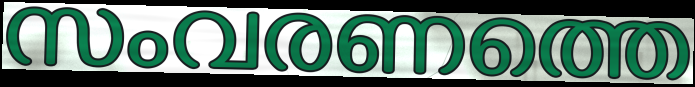
സംവരണത്തെ